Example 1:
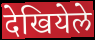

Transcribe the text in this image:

देखियेले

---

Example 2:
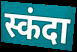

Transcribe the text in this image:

स्कंदा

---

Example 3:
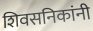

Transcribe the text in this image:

शिवसनिकांनी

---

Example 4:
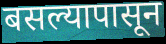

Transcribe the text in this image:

बसल्यापासून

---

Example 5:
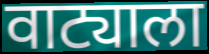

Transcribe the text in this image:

वाट्याला